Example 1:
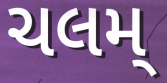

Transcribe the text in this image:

ચલમ્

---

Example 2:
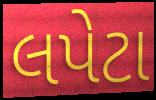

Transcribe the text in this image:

લપેટા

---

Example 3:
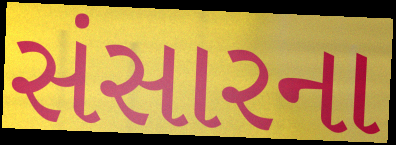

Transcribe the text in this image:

સંસારના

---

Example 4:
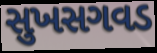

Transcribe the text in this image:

સુખસગવડ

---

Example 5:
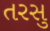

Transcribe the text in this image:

તરસુ